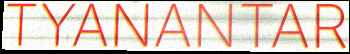
TYANANTAR